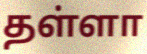
தள்ளா